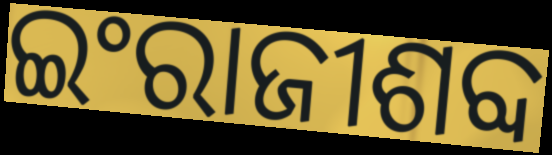
ଇଂରାଜୀଶବ୍ଦ